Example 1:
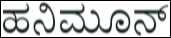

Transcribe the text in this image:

ಹನಿಮೂನ್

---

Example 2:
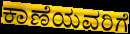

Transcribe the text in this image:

ಕಾಣೆಯವರಿಗೆ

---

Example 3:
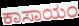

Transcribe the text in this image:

ಕಾಸಾಯಂ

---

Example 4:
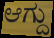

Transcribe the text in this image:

ಆಗ್ದು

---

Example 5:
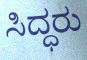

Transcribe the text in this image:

ಸಿದ್ಧರು